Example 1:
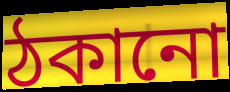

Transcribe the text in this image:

ঠকানো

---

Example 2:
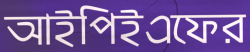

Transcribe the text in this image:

আইপিইএফের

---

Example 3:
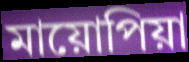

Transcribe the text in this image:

মায়োপিয়া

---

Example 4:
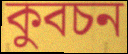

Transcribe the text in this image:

কুবচন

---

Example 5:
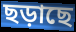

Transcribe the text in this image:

ছড়াছে